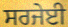
ਸਰਜੇਈ